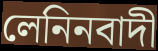
লেনিনবাদী